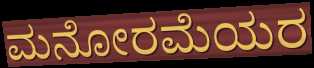
ಮನೋರಮೆಯರ